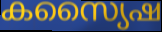
കസ്യൈഷ